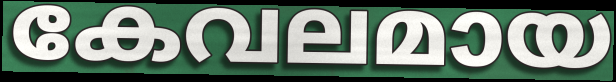
കേവലമായ